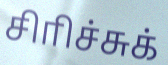
சிரிச்சுக்